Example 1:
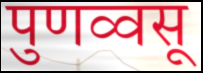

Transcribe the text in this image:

पुणव्वसू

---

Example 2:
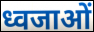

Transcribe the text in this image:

ध्वजाओं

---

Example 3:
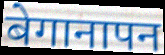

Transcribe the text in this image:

बेगानापन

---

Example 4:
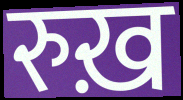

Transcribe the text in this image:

रुख़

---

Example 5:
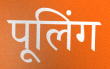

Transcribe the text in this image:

पूलिंग